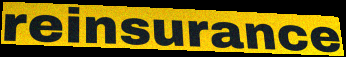
reinsurance